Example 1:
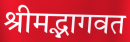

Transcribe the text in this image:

श्रीमद्भागवत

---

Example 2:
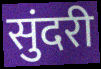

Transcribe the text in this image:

सुंदरी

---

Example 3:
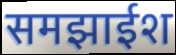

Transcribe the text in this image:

समझाईश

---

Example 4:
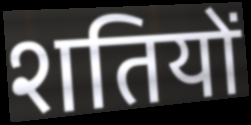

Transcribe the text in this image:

शतियों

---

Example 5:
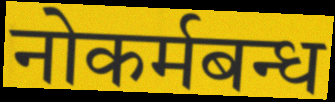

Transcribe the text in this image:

नोकर्मबन्ध